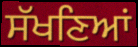
ਸੱਖਣਿਆਂ